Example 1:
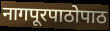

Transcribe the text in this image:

नागपूरपाठोपाठ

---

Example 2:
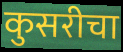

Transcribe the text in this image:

कुसरीचा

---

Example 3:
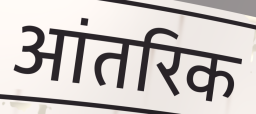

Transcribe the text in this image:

आंतरिक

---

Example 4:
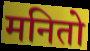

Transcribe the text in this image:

मनितो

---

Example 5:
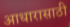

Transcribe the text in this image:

आधारासाठी